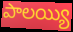
పాలయ్యి